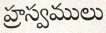
హ్రస్వములు